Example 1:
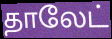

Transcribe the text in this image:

தாலேட்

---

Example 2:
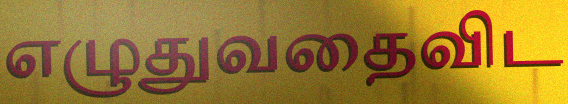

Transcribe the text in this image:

எழுதுவதைவிட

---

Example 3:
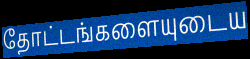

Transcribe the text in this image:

தோட்டங்களையுடைய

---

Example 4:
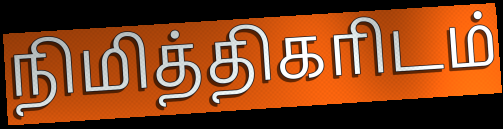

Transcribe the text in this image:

நிமித்திகரிடம்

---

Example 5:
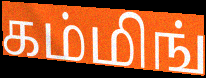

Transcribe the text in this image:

கம்மிங்